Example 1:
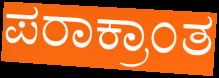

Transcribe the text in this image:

ಪರಾಕ್ರಾಂತ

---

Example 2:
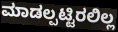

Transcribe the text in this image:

ಮಾಡಲ್ಪಟ್ಟಿರಲಿಲ್ಲ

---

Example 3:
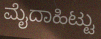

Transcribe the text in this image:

ಮೈದಾಹಿಟ್ಟು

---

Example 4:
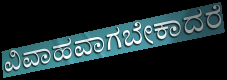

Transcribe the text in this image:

ವಿವಾಹವಾಗಬೇಕಾದರೆ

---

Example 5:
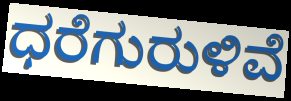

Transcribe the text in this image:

ಧರೆಗುರುಳಿವೆ